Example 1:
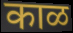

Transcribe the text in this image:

काळ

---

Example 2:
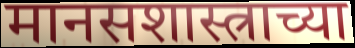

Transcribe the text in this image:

मानसशास्त्राच्या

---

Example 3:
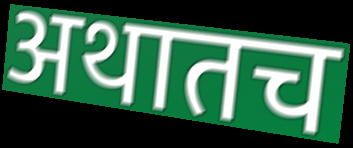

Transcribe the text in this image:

अथातच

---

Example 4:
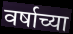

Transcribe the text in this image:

वर्षाच्या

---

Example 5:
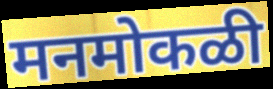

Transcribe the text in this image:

मनमोकळी